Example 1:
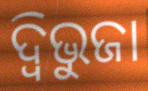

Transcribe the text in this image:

ଦ୍ବିଭୁଜା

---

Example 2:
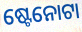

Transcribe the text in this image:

ଷ୍ଟେନୋଟା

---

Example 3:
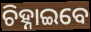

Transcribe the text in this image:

ଚିହ୍ନାଇବେ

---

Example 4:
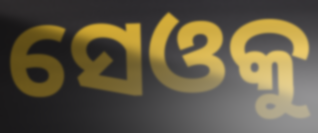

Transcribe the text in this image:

ସେଓକୁ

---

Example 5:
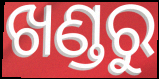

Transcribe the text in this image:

ଖଣ୍ଡରୁ